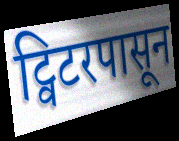
ट्विटरपासून